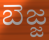
బెజ్జ